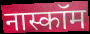
नास्कॉम